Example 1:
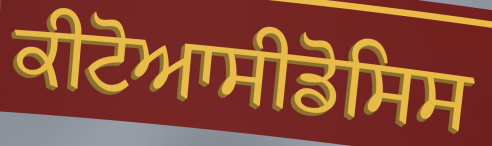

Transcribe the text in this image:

ਕੀਟੋਆਸੀਡੋਸਿਸ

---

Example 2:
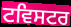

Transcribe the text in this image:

ਟਵਿਸਟਰ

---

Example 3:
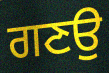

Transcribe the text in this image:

ਗਣਉ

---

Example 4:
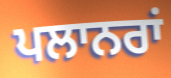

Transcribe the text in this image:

ਪਲਾਨਰਾਂ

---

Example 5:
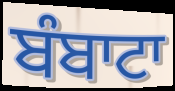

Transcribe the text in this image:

ਬੰਬਾਟਾ